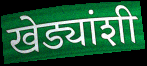
खेड्यांशी